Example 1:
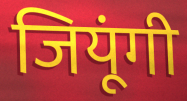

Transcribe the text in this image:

जियूंगी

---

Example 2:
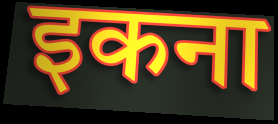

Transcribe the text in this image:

इकना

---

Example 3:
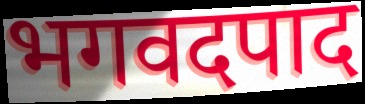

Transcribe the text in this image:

भगवदपाद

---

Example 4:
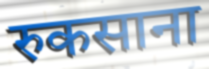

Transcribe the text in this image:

रुकसाना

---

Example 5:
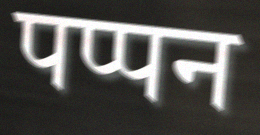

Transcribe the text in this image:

पप्पन